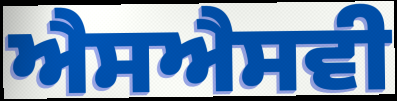
ਐਸਐਸਵੀ